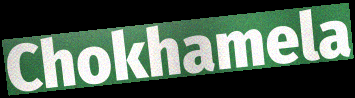
Chokhamela